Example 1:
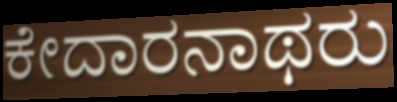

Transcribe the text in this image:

ಕೇದಾರನಾಥರು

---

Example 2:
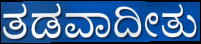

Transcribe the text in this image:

ತಡವಾದೀತು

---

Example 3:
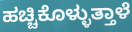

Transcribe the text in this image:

ಹಚ್ಚಿಕೊಳ್ಳುತ್ತಾಳೆ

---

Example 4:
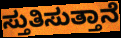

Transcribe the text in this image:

ಸ್ತುತಿಸುತ್ತಾನೆ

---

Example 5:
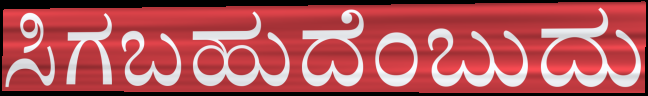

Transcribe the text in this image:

ಸಿಗಬಹುದೆಂಬುದು